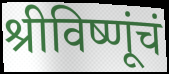
श्रीविष्णूंचं